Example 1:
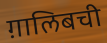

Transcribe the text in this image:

ग़ालिबची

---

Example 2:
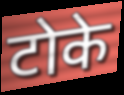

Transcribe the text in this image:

टोके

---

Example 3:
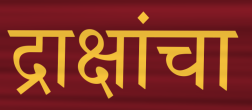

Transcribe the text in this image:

द्राक्षांचा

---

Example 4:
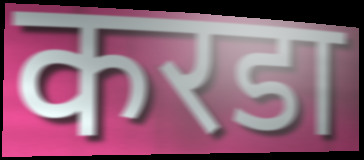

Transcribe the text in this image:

करडा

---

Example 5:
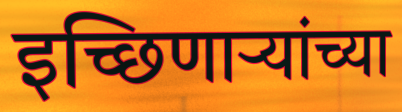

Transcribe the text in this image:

इच्छिणार्‍यांच्या